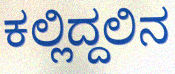
ಕಲ್ಲಿದ್ದಲಿನ